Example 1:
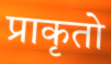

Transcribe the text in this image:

प्राकृतो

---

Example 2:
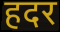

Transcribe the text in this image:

हदर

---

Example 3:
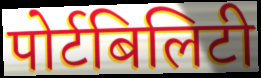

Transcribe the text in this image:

पोर्टबिलिटी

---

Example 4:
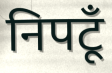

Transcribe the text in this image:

निपटूँ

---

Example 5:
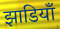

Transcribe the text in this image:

झाडियाँ